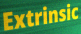
Extrinsic